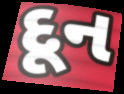
દૂન